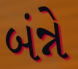
બંન્ને